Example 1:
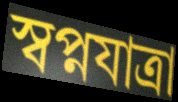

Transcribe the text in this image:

স্বপ্নযাত্রা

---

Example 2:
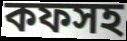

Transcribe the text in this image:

কফসহ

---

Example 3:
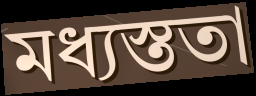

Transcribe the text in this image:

মধ্যস্ততা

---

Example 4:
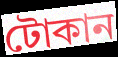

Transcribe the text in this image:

টোকান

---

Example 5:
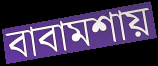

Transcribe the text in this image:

বাবামশায়